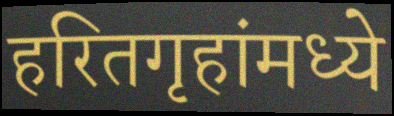
हरितगृहांमध्ये